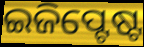
ଇଜିପ୍ଟେଷ୍ଟ